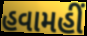
હવામહીં